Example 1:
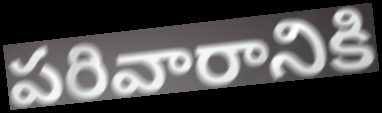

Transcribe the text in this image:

పరివారానికి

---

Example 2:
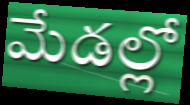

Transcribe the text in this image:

మేడల్లో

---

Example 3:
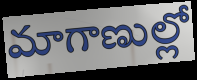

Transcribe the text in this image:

మాగాణుల్లో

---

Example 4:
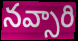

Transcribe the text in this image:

నవ్సారి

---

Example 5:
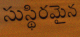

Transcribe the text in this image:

సుస్థిరమైన